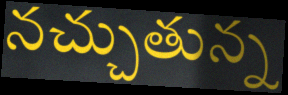
నచ్చుతున్న